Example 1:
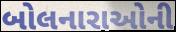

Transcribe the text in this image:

બોલનારાઓની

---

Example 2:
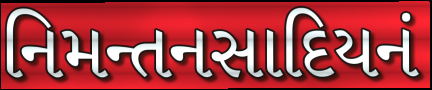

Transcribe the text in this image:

નિમન્તનસાદિયનં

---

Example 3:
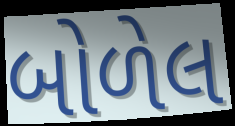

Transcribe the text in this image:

બોળેલ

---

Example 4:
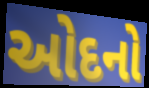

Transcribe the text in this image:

ઓદનો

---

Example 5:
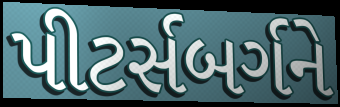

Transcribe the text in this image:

પીટર્સબર્ગને